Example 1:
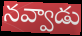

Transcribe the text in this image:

నవ్వాడు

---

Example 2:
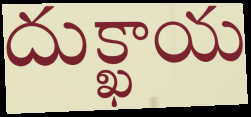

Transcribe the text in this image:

దుక్ఖాయ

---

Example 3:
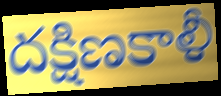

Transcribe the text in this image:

దక్షిణకాళీ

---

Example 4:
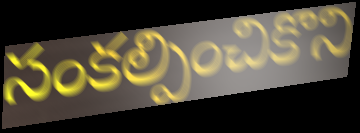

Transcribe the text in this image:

సంకల్పించికొని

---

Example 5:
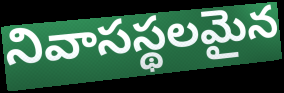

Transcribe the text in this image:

నివాసస్థలమైన